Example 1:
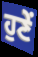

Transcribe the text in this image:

ਹੁਣੇਂ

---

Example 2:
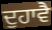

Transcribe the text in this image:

ਦੁਹਾਵੈ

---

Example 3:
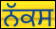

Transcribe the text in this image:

ਨੱਕਸ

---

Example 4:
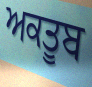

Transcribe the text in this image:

ਅਕਤੂਬ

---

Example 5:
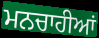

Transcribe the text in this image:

ਮਨਚਾਹੀਆਂ